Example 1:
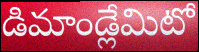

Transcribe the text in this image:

డిమాండ్లేమిటో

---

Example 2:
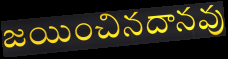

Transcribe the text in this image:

జయించినదానవు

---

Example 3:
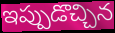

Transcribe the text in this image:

ఇప్పుడొచ్చిన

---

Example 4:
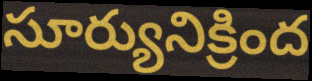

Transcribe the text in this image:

సూర్యునిక్రింద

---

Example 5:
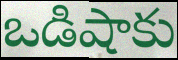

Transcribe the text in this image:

ఒడిషాకు